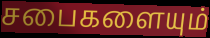
சபைகளையும்